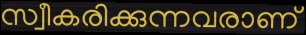
സ്വീകരിക്കുന്നവരാണ്